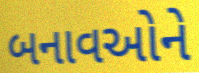
બનાવઓને